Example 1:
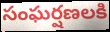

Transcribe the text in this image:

సంఘర్షణలకి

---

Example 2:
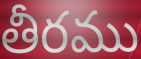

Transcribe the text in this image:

తీరము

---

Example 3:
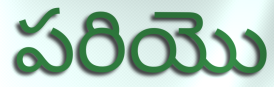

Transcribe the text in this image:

పరియొ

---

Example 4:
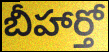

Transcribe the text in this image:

బీహార్తో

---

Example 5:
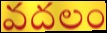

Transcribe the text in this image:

వదలం